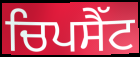
ਚਿਪਸੈੱਟ